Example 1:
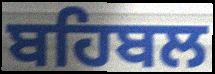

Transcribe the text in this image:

ਬਹਿਬਲ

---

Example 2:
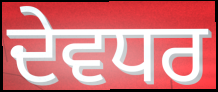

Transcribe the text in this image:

ਦੇਵਧਰ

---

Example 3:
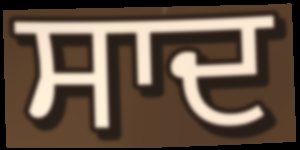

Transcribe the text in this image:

ਸਾਦ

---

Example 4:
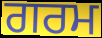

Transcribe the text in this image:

ਗਰਮ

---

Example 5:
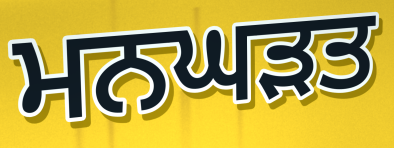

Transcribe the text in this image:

ਮਨਘੜਤ